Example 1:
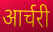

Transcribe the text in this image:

आर्चरी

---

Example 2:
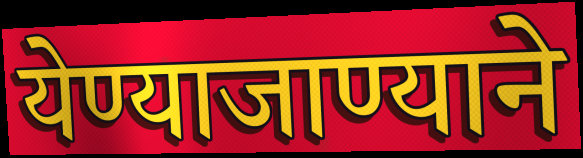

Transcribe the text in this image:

येण्याजाण्याने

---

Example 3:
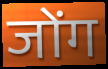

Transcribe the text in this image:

जोंग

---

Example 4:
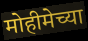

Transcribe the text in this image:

मोहीमेच्या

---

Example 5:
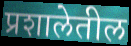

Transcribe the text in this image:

प्रशालेतील